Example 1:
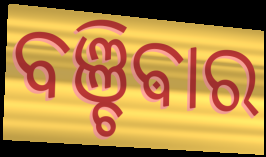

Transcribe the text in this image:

ବଞ୍ଚିଵାର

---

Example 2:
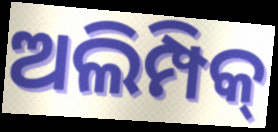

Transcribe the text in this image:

ଅଲିମ୍ପିକ୍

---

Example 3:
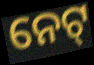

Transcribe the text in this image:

ନେଟ୍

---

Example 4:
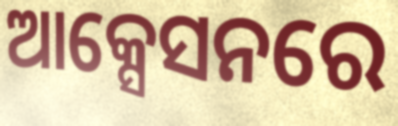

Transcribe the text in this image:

ଆକ୍ସେସନରେ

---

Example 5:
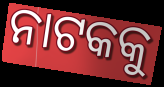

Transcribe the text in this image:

ନାଟକକୁ